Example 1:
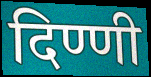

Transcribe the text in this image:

दिण्णी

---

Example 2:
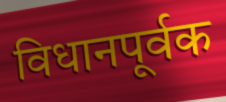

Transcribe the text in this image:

विधानपूर्वक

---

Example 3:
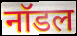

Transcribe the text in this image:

नॉडल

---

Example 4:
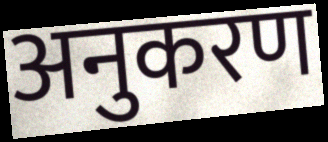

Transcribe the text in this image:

अनुकरण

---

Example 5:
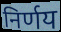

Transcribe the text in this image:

निर्णय